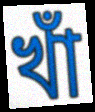
খাঁ